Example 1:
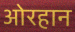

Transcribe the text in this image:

ओरहान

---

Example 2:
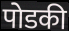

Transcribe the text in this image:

पोडकी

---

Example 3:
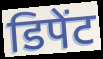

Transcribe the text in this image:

डिपेंट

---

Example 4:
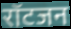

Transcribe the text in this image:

रॉटजन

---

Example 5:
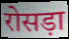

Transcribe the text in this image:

रोसड़ा